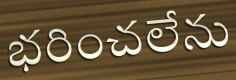
భరించలేను